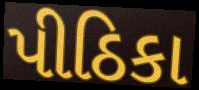
પીઠિકા